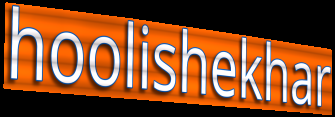
hoolishekhar